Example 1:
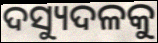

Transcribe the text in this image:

ଦସ୍ୟୁଦଳକୁ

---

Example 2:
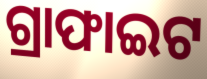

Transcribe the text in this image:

ଗ୍ରାଫାଇଟ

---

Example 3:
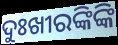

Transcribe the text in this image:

ଦୁଃଖୀରଙ୍କିଙ୍କି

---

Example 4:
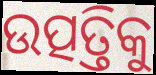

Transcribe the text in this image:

ଉତ୍ପତ୍ତିକୁ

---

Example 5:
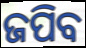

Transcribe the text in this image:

ଜପିବ